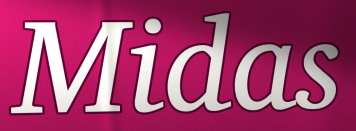
Midas